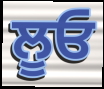
ਲੂਓ